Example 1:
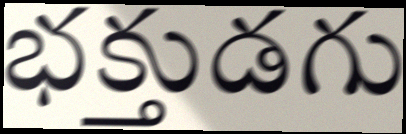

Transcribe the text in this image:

భక్తుడగు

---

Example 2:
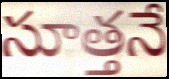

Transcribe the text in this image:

సూత్తనే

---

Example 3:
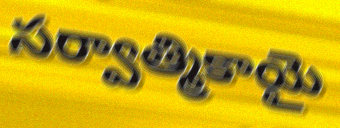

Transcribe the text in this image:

సర్వాత్మికాయై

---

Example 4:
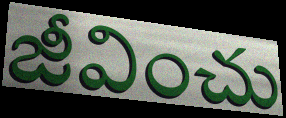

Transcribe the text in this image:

జీవించు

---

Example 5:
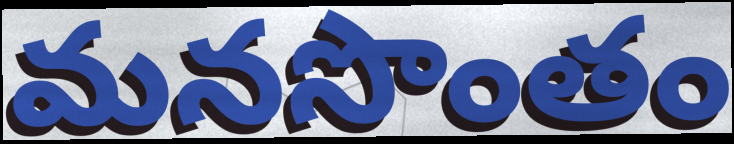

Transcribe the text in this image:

మనసొంతం